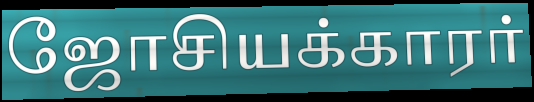
ஜோசியக்காரர்